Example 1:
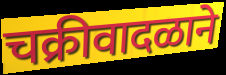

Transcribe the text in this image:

चक्रीवादळाने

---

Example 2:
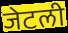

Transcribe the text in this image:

जेटली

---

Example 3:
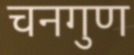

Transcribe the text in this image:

चनगुण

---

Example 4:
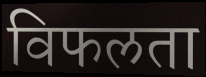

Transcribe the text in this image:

विफलता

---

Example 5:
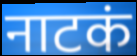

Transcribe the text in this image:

नाटकं